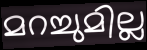
മറച്ചുമില്ല